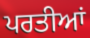
ਪਰਤੀਆਂ